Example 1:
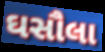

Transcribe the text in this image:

ઘસૌલા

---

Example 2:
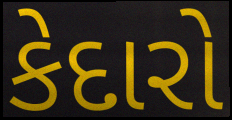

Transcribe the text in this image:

કેદારો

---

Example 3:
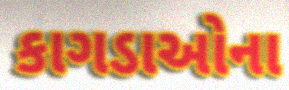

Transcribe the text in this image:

કાગડાઓના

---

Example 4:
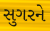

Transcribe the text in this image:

સુગરને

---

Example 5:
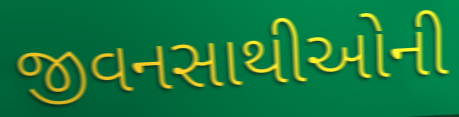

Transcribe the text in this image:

જીવનસાથીઓની